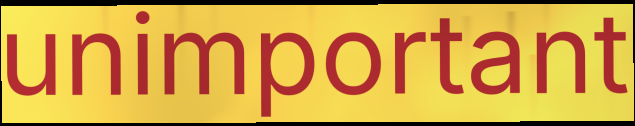
unimportant